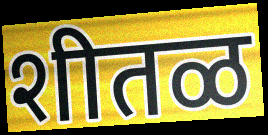
शीतळ